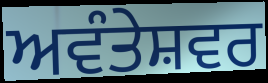
ਅਵੰਤੇਸ਼ਵਰ